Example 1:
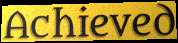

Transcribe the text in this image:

Achieved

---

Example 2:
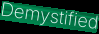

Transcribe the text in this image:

Demystified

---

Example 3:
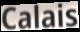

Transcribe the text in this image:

Calais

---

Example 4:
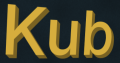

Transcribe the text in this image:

Kub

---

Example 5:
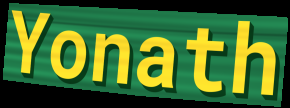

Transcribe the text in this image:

Yonath